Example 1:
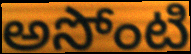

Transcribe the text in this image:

అసోంటి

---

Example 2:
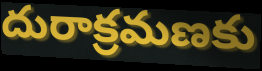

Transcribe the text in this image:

దురాక్రమణకు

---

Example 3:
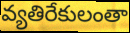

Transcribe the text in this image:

వ్యతిరేకులంతా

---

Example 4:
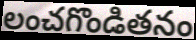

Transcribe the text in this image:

లంచగొండితనం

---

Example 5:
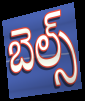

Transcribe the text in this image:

బెల్స్